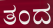
ತಂದ